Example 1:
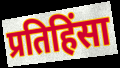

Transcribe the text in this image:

प्रतिहिंसा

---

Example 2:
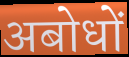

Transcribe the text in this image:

अबोधों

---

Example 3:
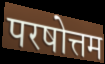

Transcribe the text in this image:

परषोत्तम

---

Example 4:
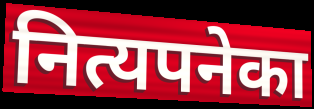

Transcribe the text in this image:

नित्यपनेका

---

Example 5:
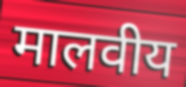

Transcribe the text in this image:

मालवीय